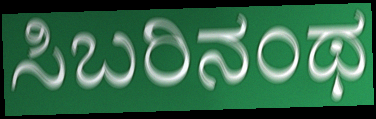
ಸಿಬರಿನಂಥ